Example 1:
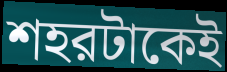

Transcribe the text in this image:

শহরটাকেই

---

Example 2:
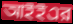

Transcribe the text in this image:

আইইএর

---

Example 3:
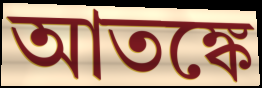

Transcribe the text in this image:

আতঙ্কে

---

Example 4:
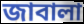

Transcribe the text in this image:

জাবালা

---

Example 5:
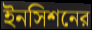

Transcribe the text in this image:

ইনসিশনের